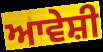
ਆਵੇਸ਼ੀ